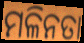
ମଳିନତା